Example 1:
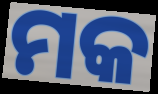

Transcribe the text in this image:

ମକ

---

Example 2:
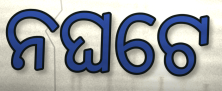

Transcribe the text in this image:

ନଘଟେ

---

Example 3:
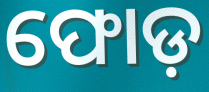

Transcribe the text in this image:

ଫୋଡ଼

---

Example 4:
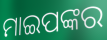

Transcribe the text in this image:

ମାଇପଙ୍କର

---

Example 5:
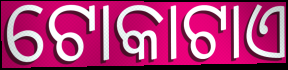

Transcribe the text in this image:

ଟୋକାଟାଏ